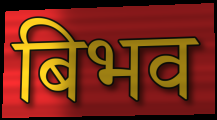
बिभव